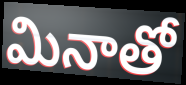
మినాతో